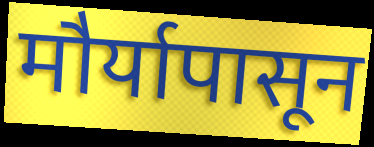
मौर्यापासून